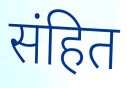
संहित